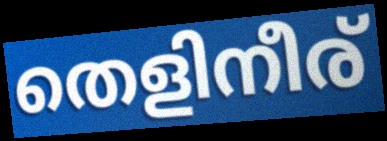
തെളിനീര്